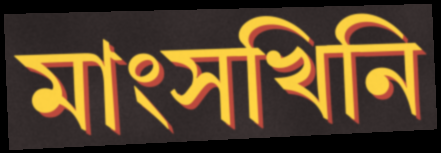
মাংসখিনি